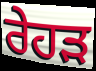
ਰੇਹੜ